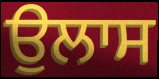
ਉਲਾਸ